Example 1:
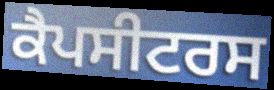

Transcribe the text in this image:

ਕੈਪਸੀਟਰਸ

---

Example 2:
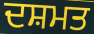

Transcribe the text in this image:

ਦਸ਼ਮਤ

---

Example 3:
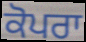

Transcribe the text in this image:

ਕੋਪਰਾ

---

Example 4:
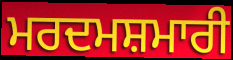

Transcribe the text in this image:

ਮਰਦਮਸ਼ਮਾਰੀ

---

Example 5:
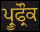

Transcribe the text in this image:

ਪ੍ਰੂਫ੍ਰੌਕ